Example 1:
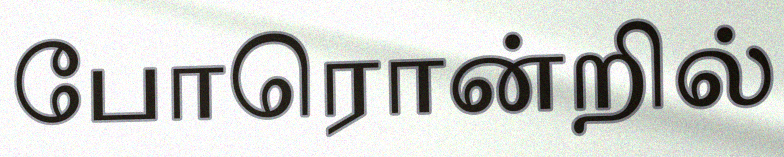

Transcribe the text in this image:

போரொன்றில்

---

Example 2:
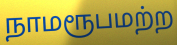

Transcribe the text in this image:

நாமரூபமற்ற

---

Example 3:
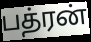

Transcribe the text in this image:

பத்ரன்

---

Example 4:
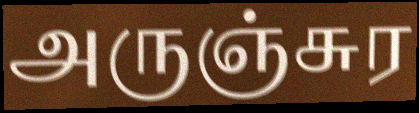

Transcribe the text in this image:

அருஞ்சுர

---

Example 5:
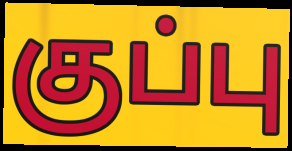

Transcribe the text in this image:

குப்பு